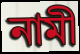
নামী